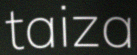
taiza